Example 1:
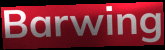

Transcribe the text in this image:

Barwing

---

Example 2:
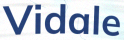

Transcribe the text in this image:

Vidale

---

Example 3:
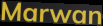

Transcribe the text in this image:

Marwan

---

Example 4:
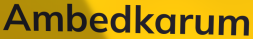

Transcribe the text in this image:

Ambedkarum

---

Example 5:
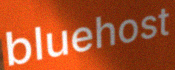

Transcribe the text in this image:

bluehost